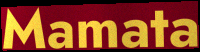
Mamata